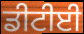
ਡੀਟੀਈ